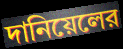
দানিয়েলের